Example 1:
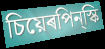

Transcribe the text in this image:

চিয়েৰপিন্‌স্কি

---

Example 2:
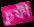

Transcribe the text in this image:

চুফী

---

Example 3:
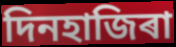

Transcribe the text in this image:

দিনহাজিৰা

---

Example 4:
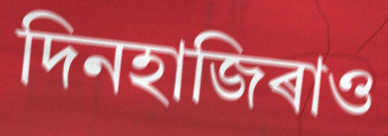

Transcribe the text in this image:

দিনহাজিৰাও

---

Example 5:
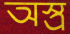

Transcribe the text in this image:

অস্ত্ৰ